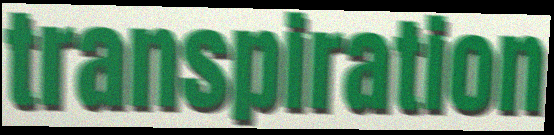
transpiration